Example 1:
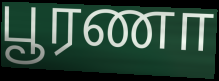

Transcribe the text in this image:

பூரணா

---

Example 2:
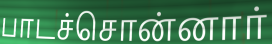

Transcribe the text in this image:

பாடச்சொன்னார்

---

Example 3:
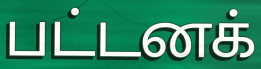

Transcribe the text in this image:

பட்டனக்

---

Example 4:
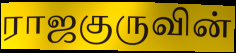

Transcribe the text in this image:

ராஜகுருவின்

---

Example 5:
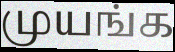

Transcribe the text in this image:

முயங்க